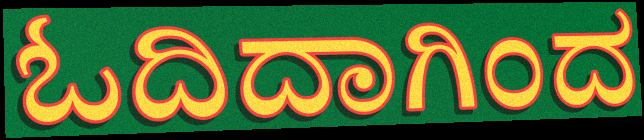
ಓದಿದಾಗಿಂದ